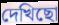
দেখিছো